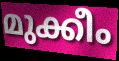
മുക്കീം